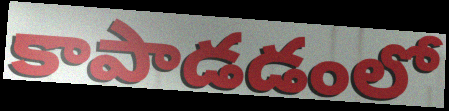
కాపాడడంలో